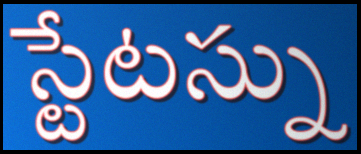
స్టేటస్ను